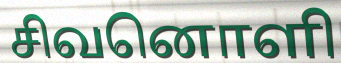
சிவனொளி